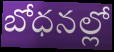
బోధనల్లో